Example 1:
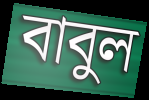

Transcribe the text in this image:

বাবুল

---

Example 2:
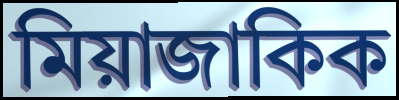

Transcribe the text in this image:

মিয়াজাকিক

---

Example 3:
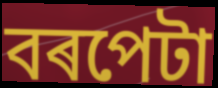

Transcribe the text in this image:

বৰপেটা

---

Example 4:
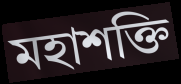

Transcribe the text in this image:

মহাশক্তি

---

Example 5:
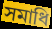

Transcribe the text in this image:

সমাধি